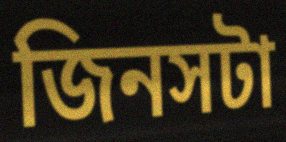
জিনসটা